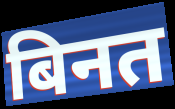
बिनत